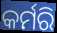
କର୍ମରି